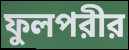
ফুলপরীর